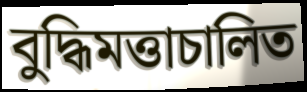
বুদ্ধিমত্তাচালিত